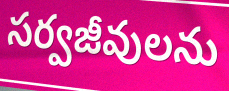
సర్వజీవులను